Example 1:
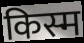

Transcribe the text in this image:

किस्‍म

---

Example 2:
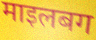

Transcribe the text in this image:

माइलबग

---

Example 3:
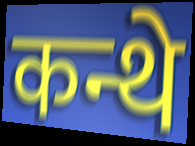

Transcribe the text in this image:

कन्थे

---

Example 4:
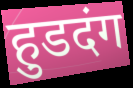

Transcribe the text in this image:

हुडदंग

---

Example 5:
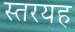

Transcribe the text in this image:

स्तरयह